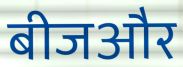
बीजऔर